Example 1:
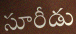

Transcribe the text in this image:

సూరీడు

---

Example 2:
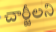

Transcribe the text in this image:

చార్జీలని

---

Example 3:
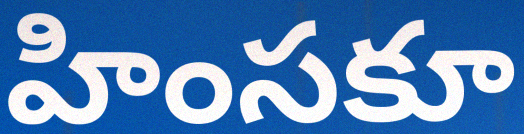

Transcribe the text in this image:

హింసకూ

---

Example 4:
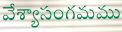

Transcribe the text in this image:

వేశ్యాసంగమము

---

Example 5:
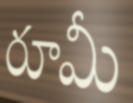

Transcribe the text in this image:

రూమీ